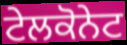
ਟੇਲਕੋਨੇਟ